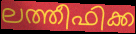
ലത്തീഫിക്ക